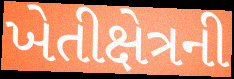
ખેતીક્ષેત્રની